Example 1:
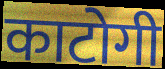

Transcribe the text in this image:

काटोगी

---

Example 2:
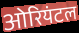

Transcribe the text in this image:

ओरियंटल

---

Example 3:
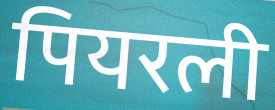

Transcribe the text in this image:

पियरली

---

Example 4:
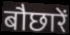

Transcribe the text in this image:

बौछारें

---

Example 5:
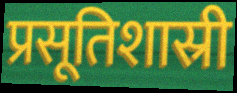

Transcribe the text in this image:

प्रसूतिशास्री